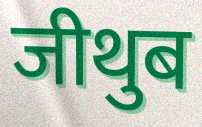
जीथुब